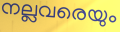
നല്ലവരെയും